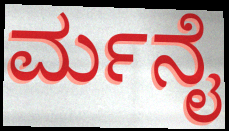
ರ್ಮನೈ